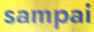
sampai